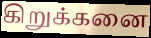
கிறுக்கனை